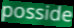
posside